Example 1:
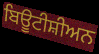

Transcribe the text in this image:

ਬਿਊਟੀਸ਼ੀਅਨ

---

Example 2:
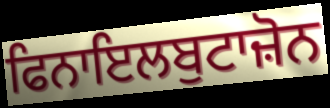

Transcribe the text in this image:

ਫਿਨਾਇਲਬੁਟਾਜ਼ੋਨ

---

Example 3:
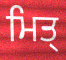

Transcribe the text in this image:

ਮਿਤ੍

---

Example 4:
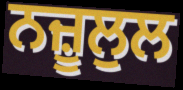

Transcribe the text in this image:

ਨਜ਼ੂਲੁਲ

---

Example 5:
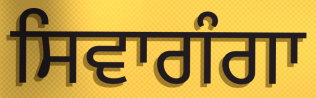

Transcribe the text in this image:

ਸਿਵਾਗੰਗਾ